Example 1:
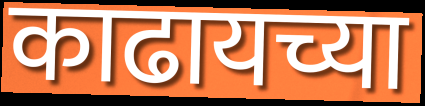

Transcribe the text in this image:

काढायच्या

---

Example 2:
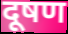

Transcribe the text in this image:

दूषण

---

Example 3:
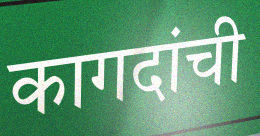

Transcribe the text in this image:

कागदांची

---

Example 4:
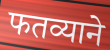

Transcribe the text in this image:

फतव्याने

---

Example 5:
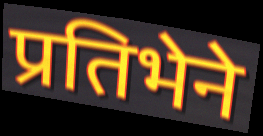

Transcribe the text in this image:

प्रतिभेने